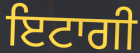
ਇਟਾਗੀ